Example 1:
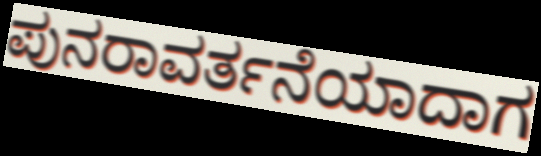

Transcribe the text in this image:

ಪುನರಾವರ್ತನೆಯಾದಾಗ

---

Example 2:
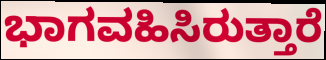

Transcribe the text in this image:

ಭಾಗವಹಿಸಿರುತ್ತಾರೆ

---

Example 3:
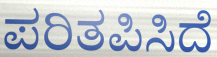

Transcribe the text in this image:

ಪರಿತಪಿಸಿದೆ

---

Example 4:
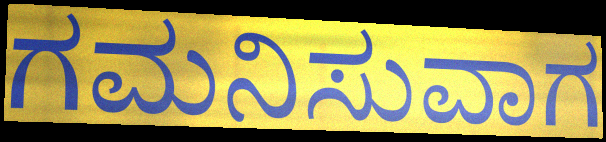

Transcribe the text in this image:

ಗಮನಿಸುವಾಗ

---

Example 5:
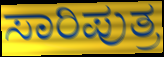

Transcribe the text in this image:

ಸಾರಿಪುತ್ರ